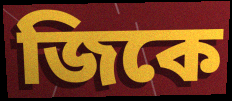
জিকে